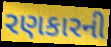
રણકારની